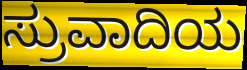
ಸ್ರುವಾದಿಯ